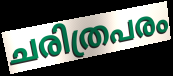
ചരിത്രപരം